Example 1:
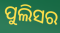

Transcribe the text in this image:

ପୁଲିସର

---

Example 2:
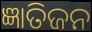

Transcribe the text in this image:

ଜ୍ଞାତିଜନ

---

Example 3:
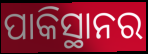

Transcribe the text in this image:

ପାକିସ୍ଥାନର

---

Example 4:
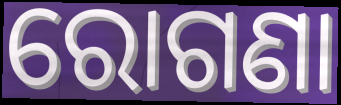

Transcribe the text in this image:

ରୋଗଣା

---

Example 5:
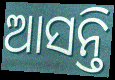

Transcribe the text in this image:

ଆସନ୍ତି